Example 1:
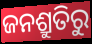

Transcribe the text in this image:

ଜନଶ୍ରୁତିରୁ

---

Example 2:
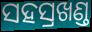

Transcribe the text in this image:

ସହସ୍ରଖଣ୍ଡ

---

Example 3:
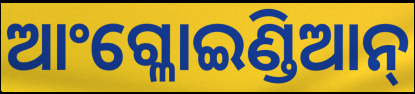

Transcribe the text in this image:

ଆଂଗ୍ଳୋଇଣ୍ଡିଆନ୍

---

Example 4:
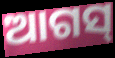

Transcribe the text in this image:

ଆଗସ୍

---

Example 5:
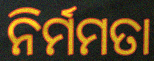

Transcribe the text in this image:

ନିର୍ମମତା